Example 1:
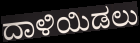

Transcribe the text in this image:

ದಾಳಿಯಿಡಲು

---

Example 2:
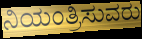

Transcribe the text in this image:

ನಿಯಂತ್ರಿಸುವರು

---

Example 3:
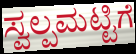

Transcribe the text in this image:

ಸ್ವಲ್ಪಮಟ್ಟಿಗೆ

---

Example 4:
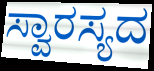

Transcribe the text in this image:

ಸ್ವಾರಸ್ಯದ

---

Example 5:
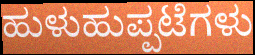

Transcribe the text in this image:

ಹುಳುಹುಪ್ಪಟೆಗಳು